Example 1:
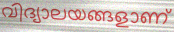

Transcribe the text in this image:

വിദ്യാലയങ്ങളാണ്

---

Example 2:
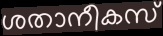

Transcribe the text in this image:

ശതാനീകസ്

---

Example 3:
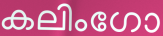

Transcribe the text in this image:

കലിംഗോ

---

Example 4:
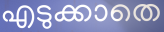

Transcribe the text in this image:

എടുക്കാതെ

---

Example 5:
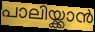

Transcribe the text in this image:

പാലിയ്ക്കാൻ